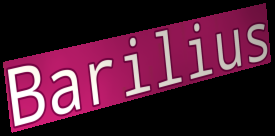
Barilius